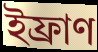
ইফ্ৰাণ